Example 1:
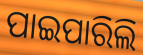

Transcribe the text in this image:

ପାଇପାରିଲି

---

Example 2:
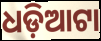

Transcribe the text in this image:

ଧଡ଼ିଆଟା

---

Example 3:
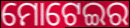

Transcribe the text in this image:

ମୋଟେଇର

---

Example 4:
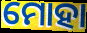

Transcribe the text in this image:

ମୋହା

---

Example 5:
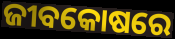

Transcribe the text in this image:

ଜୀବକୋଷରେ